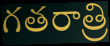
గతరాత్రి